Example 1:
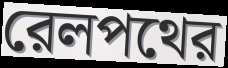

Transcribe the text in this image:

রেলপথের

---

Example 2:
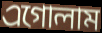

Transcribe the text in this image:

এগোলাম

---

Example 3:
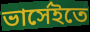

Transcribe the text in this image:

ভার্সেইতে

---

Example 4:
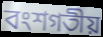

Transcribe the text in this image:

বংশগতীয়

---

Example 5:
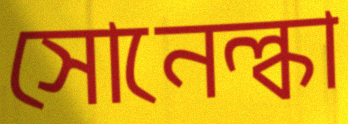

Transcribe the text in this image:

সোনেল্কা